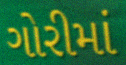
ગોરીમાં